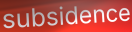
subsidence